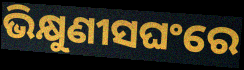
ଭିକ୍ଷୁଣୀସଘଂରେ